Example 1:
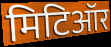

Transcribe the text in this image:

मिटिऑर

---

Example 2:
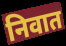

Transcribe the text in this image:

निवात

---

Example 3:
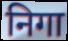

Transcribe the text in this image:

निगा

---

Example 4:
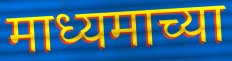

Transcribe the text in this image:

माध्यमाच्या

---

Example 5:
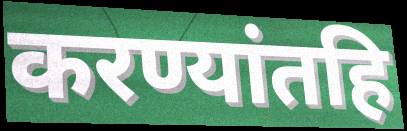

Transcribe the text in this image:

करण्यांतहि